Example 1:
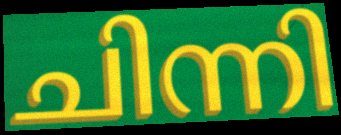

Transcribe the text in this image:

ചിന്നി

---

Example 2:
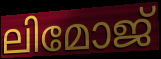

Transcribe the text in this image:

ലിമോജ്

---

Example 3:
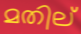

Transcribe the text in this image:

മതില്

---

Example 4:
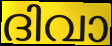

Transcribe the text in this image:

ദിവാ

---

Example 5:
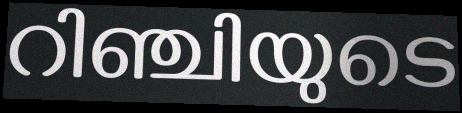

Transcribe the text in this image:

റിഞ്ചിയുടെ